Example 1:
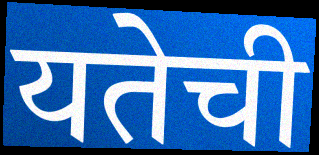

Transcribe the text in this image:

यतेची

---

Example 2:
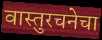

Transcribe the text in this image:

वास्तुरचनेचा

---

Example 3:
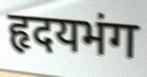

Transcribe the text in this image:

हृदयभंग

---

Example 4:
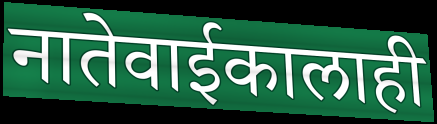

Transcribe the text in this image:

नातेवाईकालाही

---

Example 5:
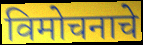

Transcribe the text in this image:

विमोचनाचे